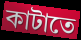
কাটাতে